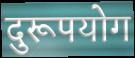
दुरूपयोग